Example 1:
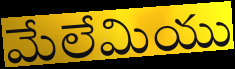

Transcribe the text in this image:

మేలేమియు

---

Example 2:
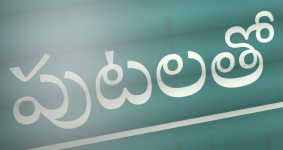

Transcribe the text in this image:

పుటలతో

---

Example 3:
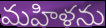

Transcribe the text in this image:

మహిళను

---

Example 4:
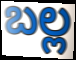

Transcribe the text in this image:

బల్ల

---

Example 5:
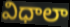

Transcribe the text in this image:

విధాలా